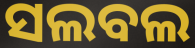
ସଲବଲ